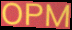
OPM